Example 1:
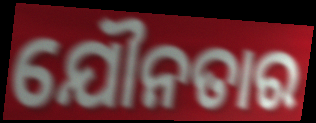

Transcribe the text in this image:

ଯୌନତାର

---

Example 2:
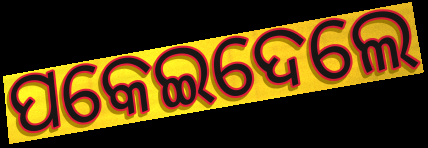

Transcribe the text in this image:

ପକେଇଦେଲେ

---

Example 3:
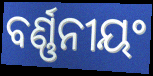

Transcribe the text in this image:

ବର୍ଣ୍ଣନୀୟଂ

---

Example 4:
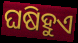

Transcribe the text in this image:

ଘଷିହୁଏ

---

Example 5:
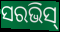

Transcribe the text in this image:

ସରଭିସ୍